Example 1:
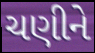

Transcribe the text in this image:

ચણીને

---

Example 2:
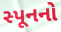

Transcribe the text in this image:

સ્પૂનનો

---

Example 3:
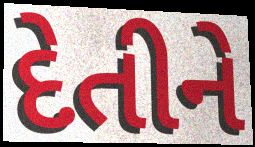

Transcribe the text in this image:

દેતીને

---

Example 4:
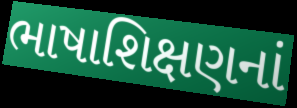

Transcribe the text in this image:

ભાષાશિક્ષણનાં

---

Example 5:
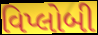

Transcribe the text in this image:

વિપ્લોબી